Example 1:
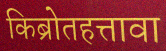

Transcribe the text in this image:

किब्रोतहत्तावा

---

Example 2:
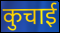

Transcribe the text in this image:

कुचाई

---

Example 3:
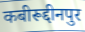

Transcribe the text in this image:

कबीरूद्दीनपुर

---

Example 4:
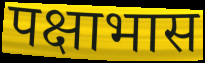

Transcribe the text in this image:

पक्षाभास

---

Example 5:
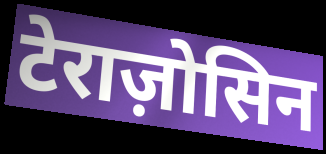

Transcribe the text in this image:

टेराज़ोसिन